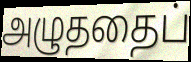
அழுததைப்